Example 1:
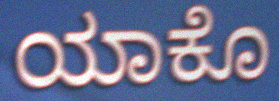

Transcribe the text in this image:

ಯಾಕೊ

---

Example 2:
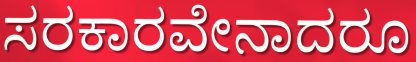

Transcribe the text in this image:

ಸರಕಾರವೇನಾದರೂ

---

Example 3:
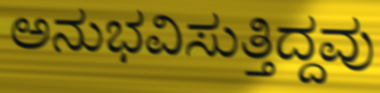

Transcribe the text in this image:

ಅನುಭವಿಸುತ್ತಿದ್ದವು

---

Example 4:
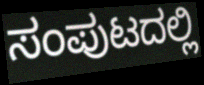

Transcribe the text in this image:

ಸಂಪುಟದಲ್ಲಿ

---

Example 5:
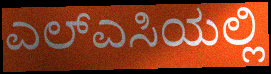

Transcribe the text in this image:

ಎಲ್ಎಸಿಯಲ್ಲಿ